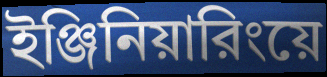
ইঞ্জিনিয়ারিংয়ে